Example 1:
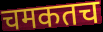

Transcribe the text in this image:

चमकतच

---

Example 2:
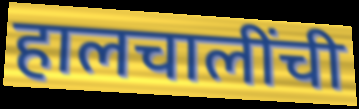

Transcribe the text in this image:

हालचालींची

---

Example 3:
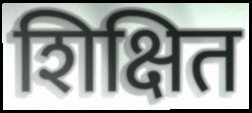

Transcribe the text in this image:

शिक्षित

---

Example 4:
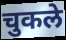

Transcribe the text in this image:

चुकले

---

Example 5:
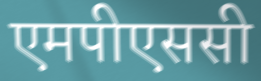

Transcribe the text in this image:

एमपीएससी